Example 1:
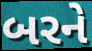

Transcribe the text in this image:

બરને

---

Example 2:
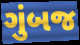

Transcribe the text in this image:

ગુંબજ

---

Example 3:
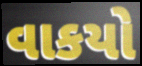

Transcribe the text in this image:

વાકયો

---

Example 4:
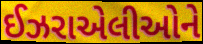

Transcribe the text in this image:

ઈઝરાએલીઓને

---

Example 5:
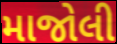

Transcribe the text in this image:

માજોલી